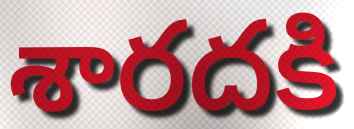
శారదకి